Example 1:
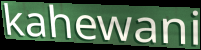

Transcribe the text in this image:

kahewani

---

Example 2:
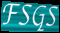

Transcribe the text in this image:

FSGS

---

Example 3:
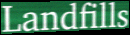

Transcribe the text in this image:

Landfills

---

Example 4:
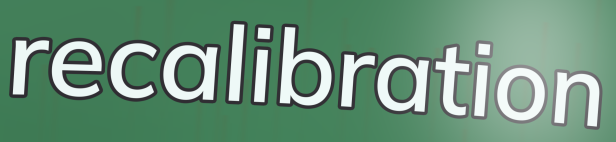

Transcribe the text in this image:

recalibration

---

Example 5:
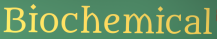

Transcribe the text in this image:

Biochemical